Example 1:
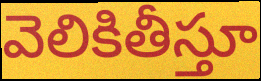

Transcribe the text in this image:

వెలికితీస్తూ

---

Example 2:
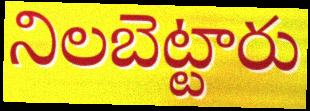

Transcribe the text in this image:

నిలబెట్టారు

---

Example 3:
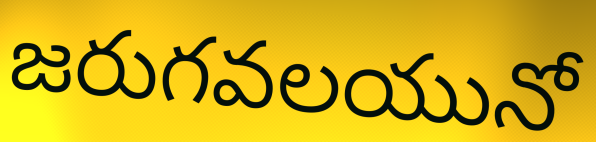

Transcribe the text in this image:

జరుగవలయునో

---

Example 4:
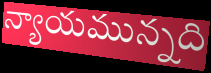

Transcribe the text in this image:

న్యాయమున్నది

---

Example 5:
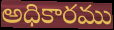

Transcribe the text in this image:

అధికారము